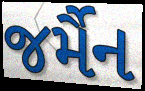
જર્મૈન